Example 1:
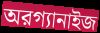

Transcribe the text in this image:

অরগ্যানাইজ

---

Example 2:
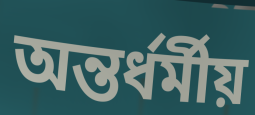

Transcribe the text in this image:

অন্তর্ধর্মীয়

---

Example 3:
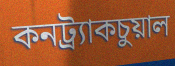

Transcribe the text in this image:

কনট্র্যাকচুয়াল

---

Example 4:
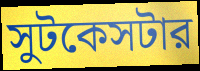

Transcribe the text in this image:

সুটকেসটার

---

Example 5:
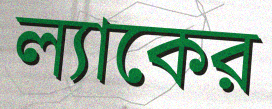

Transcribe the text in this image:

ল্যাকের